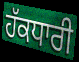
ਹੱਕਧਾਰੀ